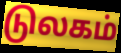
டுலகம்